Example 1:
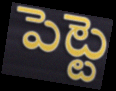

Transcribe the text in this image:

పెట్టె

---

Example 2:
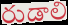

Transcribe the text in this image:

రుడాలి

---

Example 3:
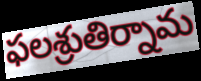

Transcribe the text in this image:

ఫలశ్రుతిర్నామ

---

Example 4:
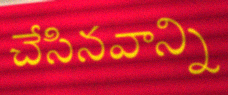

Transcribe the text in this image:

చేసినవాన్ని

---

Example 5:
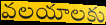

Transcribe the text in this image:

వలయాలకు